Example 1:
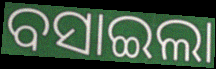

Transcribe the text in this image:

ବସାଇଲା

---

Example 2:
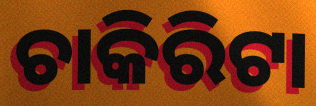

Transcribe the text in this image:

ଚାକିରିଟା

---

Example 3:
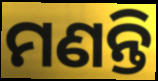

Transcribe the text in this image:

ମଣନ୍ତି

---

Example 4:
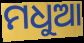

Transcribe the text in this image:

ମଧୁଆ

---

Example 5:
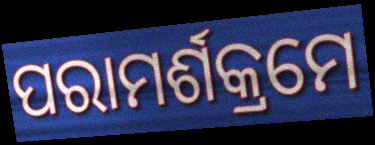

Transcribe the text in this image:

ପରାମର୍ଶକ୍ରମେ